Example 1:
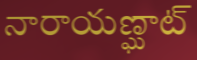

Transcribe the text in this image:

నారాయణ్ఘాట్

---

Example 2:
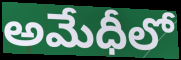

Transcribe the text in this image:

అమేధీలో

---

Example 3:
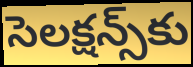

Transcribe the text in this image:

సెలక్షన్స్‌కు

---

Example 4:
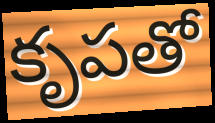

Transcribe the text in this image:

కృపతో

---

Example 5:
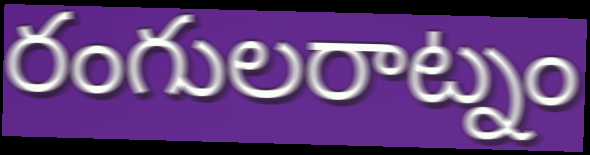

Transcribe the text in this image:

రంగులరాట్నం